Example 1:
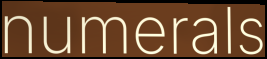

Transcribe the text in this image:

numerals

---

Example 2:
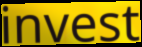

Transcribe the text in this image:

invest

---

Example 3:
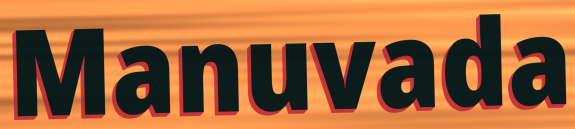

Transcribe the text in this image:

Manuvada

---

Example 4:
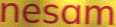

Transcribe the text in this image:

nesam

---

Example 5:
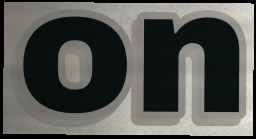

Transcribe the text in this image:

on